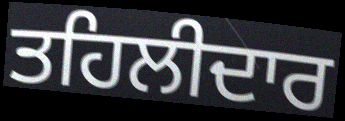
ਤਹਿਲੀਦਾਰ